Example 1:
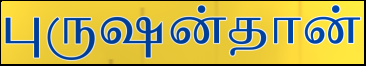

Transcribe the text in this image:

புருஷன்தான்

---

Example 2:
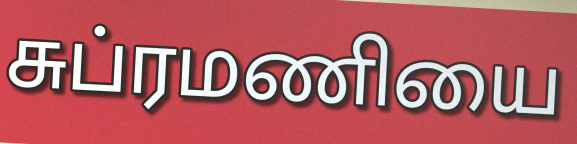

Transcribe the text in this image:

சுப்ரமணியை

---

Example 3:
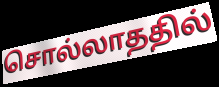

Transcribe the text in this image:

சொல்லாததில்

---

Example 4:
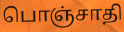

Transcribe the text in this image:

பொஞ்சாதி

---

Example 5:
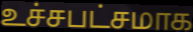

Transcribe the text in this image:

உச்சபட்சமாக